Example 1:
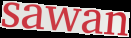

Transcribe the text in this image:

sawan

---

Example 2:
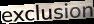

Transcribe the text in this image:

exclusion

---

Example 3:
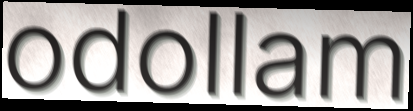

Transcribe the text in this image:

odollam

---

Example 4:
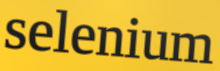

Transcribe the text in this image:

selenium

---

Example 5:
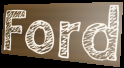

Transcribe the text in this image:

Ford